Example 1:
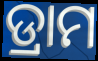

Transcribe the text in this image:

ଡ୍ରାମ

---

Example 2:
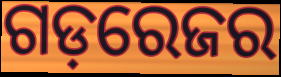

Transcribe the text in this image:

ଗଡ଼ରେଜର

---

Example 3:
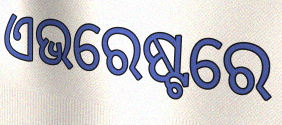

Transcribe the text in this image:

ଏଭରେଷ୍ଟରେ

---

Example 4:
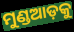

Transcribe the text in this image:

ମୁଣ୍ଡଆଡ଼କୁ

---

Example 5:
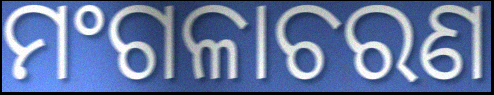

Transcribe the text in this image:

ମଂଗଳାଚରଣ